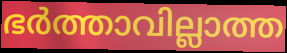
ഭർത്താവില്ലാത്ത